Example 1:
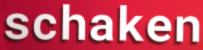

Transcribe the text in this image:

schaken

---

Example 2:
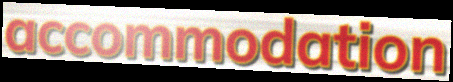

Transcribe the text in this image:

accommodation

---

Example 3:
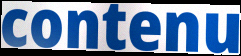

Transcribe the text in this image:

contenu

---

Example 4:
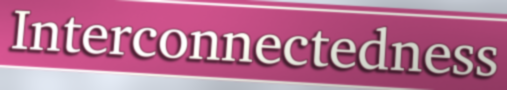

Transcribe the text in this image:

Interconnectedness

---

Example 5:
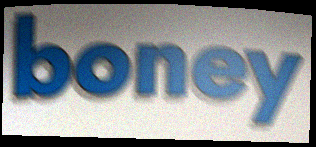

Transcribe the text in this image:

boney